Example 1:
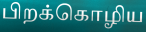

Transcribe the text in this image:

பிறக்கொழிய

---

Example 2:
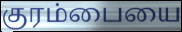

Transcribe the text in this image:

குரம்பையை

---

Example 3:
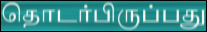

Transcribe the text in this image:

தொடர்பிருப்பது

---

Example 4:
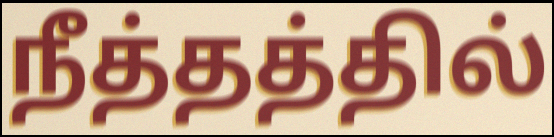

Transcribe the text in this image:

நீத்தத்தில்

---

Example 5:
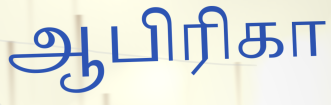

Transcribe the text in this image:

ஆபிரிகா